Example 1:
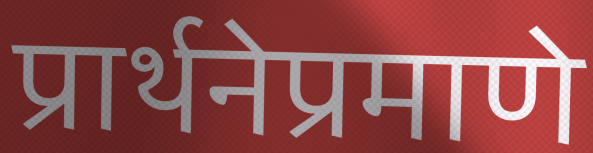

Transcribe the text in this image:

प्रार्थनेप्रमाणे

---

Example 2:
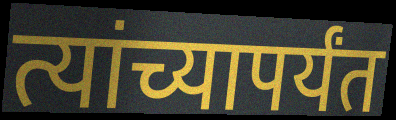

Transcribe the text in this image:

त्यांच्यापर्यंत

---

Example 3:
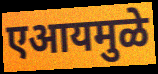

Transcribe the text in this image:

एआयमुळे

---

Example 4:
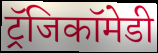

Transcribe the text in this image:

ट्रॅजिकॉमेडी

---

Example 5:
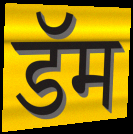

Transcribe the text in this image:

डॅम